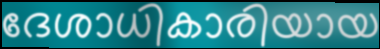
ദേശാധികാരിയായ